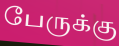
பேருக்கு